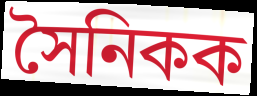
সৈনিকক